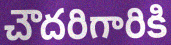
చౌదరిగారికి